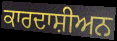
ਕਾਰਦਾਸ਼ੀਅਨ